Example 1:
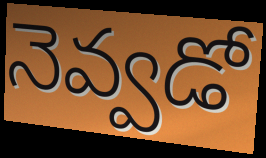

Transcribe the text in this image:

నెవ్వడో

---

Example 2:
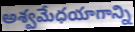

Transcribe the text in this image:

అశ్వమేధయాగాన్ని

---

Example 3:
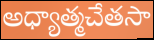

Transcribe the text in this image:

అధ్యాత్మచేతసా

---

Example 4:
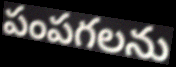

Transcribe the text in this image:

పంపగలను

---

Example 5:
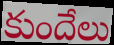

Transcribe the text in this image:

కుందేలు